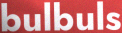
bulbuls